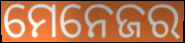
ମେନେଜର